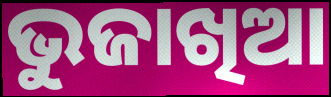
ଭୁଜାଖିଆ